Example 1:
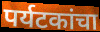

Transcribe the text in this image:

पर्यटकांचा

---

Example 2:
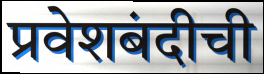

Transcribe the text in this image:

प्रवेशबंदीची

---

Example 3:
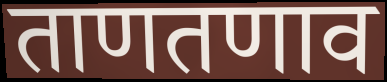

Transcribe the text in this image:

ताणतणाव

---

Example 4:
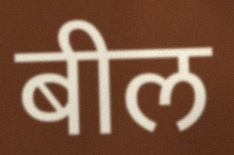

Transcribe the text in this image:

बील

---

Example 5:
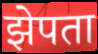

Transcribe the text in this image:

झेपता